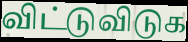
விட்டுவிடுக